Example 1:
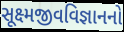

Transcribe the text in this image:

સૂક્ષ્મજીવવિજ્ઞાનનો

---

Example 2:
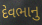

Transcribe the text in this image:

દેવભાનુ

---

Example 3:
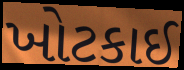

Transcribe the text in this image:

ખોટકાઈ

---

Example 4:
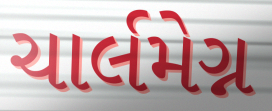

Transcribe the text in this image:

ચાર્લમેગ્ન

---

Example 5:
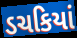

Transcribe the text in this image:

ડચકિયાં